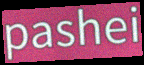
pashei